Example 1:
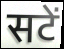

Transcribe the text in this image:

सटें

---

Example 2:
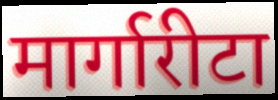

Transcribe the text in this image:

मार्गारीटा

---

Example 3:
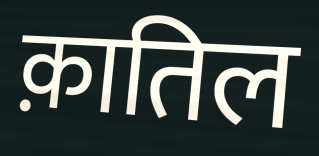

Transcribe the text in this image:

क़ातिल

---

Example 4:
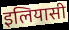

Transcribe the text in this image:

इलियासी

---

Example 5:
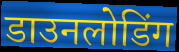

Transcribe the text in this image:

डाउनलोडिंग